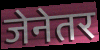
जेनेतर